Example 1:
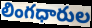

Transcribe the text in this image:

లింగధారుల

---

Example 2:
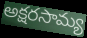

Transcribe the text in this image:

అక్షరసామ్య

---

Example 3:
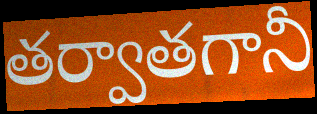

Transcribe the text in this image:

తర్వాతగానీ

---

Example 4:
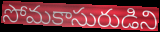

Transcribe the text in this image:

సోమకాసురుడిని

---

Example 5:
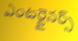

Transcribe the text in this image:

ఎంటర్టైనర్స్